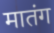
मातंग